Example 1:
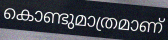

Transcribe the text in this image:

കൊണ്ടുമാത്രമാണ്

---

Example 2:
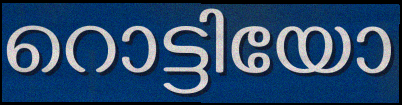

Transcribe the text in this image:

റൊട്ടിയോ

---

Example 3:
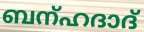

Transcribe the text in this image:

ബന്ഹദാദ്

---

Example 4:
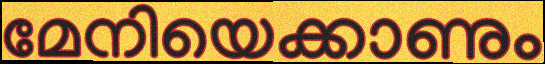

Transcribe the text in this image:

മേനിയെക്കാണും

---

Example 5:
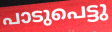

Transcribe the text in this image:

പാടുപെട്ടു